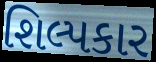
શિલ્પકાર